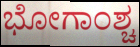
ಭೋಗಾಂಶ್ಚ